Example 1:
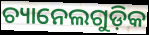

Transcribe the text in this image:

ଚ୍ୟାନେଲଗୁଡ଼ିକ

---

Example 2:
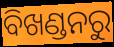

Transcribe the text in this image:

ବିଖଣ୍ଡନରୁ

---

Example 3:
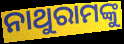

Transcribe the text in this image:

ନାଥୁରାମଙ୍କୁ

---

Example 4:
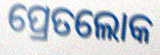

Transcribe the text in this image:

ପ୍ରେତଲୋକ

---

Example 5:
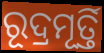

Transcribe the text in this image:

ରୂଦ୍ରମୂର୍ତ୍ତି